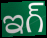
ఇగ్